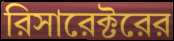
রিসারেক্টরের